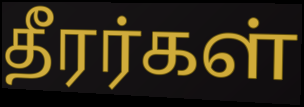
தீரர்கள்